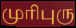
முரிபுரு